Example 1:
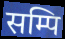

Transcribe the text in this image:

सम्पि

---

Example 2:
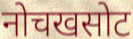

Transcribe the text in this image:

नोचखसोट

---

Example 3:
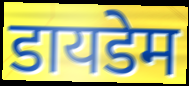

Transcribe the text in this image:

डायडेम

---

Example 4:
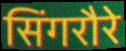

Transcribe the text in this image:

सिंगरौरे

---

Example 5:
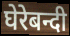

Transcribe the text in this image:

घेरेबन्दी